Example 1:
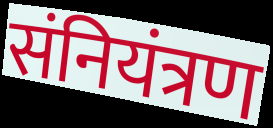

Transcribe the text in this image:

संनियंत्रण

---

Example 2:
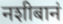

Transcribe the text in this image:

नशीबानं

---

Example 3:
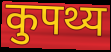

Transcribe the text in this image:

कुपथ्य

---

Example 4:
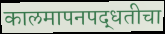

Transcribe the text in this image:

कालमापनपद्धतीचा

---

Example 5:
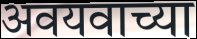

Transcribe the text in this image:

अवयवाच्या